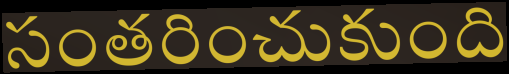
సంతరించుకుంది